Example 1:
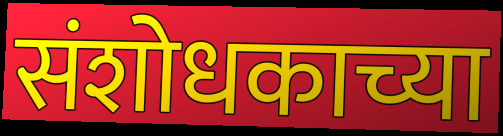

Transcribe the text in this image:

संशोधकाच्या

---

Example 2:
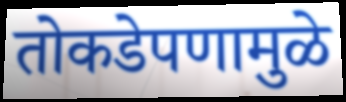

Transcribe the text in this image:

तोकडेपणामुळे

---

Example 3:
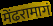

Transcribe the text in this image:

मेंढरामागं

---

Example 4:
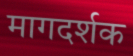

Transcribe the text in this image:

मागदर्शक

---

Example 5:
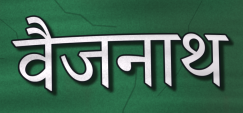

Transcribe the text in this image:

वैजनाथ